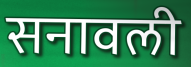
सनावली